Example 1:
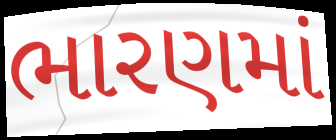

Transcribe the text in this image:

ભારણમાં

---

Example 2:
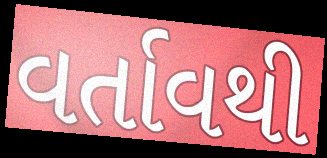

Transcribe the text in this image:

વર્તાવથી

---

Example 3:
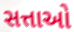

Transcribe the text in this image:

સત્તાઓ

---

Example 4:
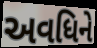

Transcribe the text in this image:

અવધિને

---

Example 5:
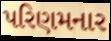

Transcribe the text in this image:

પરિણમનાર